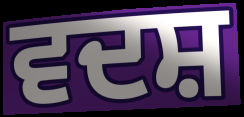
ਵਦਸ਼